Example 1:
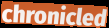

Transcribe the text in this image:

chronicled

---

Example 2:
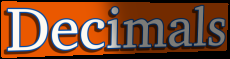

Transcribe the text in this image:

Decimals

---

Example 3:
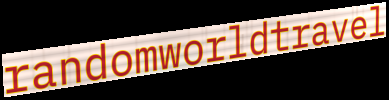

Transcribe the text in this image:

randomworldtravel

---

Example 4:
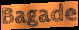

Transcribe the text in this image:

Bagade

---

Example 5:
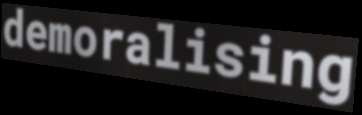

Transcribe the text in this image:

demoralising